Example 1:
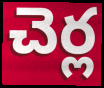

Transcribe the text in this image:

చెర్ల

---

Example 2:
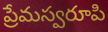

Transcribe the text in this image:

ప్రేమస్వరూపి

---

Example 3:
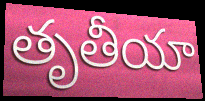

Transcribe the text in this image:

తృతీయా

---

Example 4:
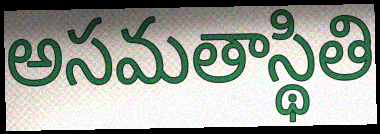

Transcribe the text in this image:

అసమతాస్థితి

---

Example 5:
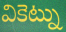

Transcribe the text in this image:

వికెట్ను